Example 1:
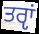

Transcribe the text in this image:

ਤਰੵਾਂ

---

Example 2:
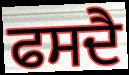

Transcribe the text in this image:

ਫਸਦੈ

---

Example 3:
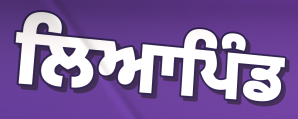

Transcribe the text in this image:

ਲਿਆਪਿੰਡ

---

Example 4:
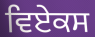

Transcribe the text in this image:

ਵਿਏਕਸ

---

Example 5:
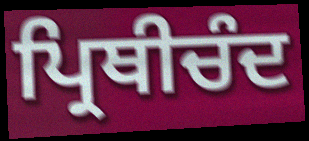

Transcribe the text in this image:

ਪ੍ਰਿਥੀਚੰਦ